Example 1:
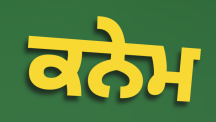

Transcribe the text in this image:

ਕਨੇਮ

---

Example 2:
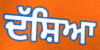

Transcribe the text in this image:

ਦੱਸ਼ਿਆ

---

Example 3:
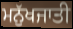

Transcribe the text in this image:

ਮਨੁੱਖਜਾਤੀ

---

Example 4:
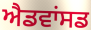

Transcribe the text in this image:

ਐਡਵਾਂਸਡ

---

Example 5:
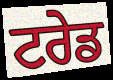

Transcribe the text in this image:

ਟਰੇਡ